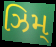
ઝિમ્